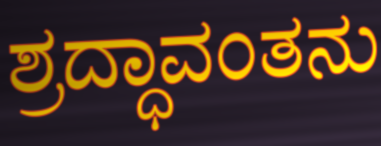
ಶ್ರದ್ಧಾವಂತನು